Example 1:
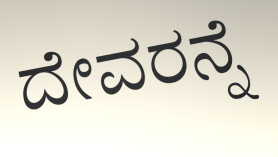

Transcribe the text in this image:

ದೇವರನ್ನೆ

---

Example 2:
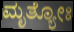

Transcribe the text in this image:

ಮೃತ್ಯೋಃ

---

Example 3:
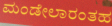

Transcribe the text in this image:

ಮಂಡೇಲಾರಂತಹ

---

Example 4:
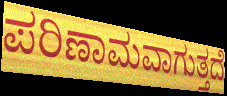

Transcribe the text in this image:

ಪರಿಣಾಮವಾಗುತ್ತದೆ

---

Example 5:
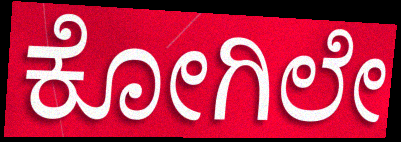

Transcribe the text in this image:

ಕೋಗಿಲೇ